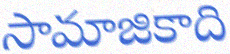
సామాజికాది